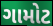
ગામોટ